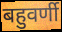
बहुवर्णी